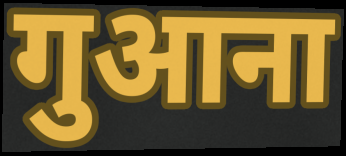
गुआना